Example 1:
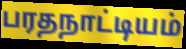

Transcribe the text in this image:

பரதநாட்டியம்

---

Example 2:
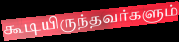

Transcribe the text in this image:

கூடியிருந்தவர்களும்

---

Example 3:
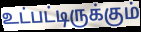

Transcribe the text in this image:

உட்பட்டிருக்கும்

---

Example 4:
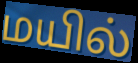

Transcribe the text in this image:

மயில்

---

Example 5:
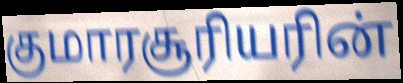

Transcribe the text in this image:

குமாரசூரியரின்